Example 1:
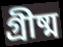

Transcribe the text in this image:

গ্ৰীষ্ম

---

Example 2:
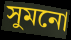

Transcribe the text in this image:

সুমনো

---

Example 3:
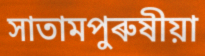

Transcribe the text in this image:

সাতামপুৰুষীয়া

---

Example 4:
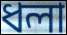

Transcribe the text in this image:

ধলা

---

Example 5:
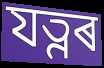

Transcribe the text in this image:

যত্নৰ